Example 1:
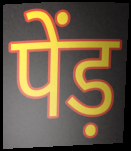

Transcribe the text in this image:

पेंड़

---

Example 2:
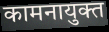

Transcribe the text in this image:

कामनायुक्त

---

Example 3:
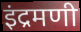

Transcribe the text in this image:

इंद्रमणी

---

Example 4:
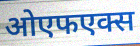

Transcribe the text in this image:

ओएफएक्स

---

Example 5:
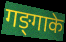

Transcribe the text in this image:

गङ्गाके